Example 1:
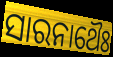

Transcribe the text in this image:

ସାରନାଥୈଃ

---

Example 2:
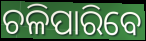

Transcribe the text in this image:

ଚଳିପାରିବେ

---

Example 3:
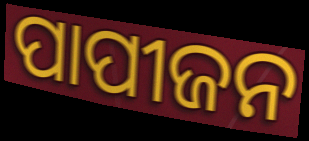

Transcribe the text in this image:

ପାପୀଜନ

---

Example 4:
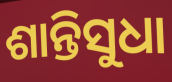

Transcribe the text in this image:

ଶାନ୍ତିସୁଧା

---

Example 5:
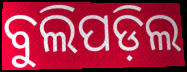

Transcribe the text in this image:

ବୁଲିପଡ଼ିଲ